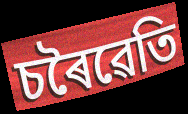
চৰৈৱেতি